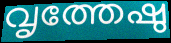
വൃത്തേഷു